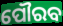
ପୌରବ